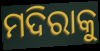
ମଦିରାକୁ